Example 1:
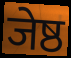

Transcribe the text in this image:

जेष्ठ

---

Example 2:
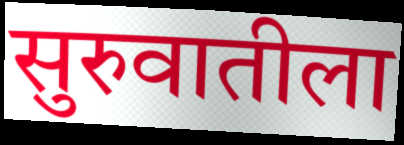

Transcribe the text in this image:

सुरुवातीला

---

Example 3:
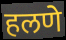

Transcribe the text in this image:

हलणे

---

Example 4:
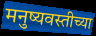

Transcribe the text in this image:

मनुष्यवस्तीच्या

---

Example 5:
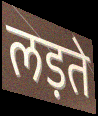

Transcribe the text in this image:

लड़ते